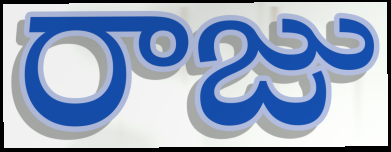
రాజు